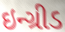
ઇન્ગ્રીડ